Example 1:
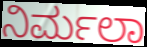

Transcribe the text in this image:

ನಿರ್ಮಲಾ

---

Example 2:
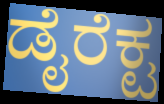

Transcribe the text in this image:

ಡೈರೆಕ್ಟ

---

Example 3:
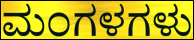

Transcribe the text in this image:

ಮಂಗಳಗಳು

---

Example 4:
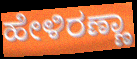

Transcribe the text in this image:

ಹೇಳಿರಣ್ಣಾ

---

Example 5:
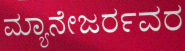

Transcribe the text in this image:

ಮ್ಯಾನೇಜರ್ರವರ